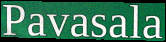
Pavasala